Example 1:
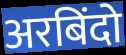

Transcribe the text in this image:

अरबिंदो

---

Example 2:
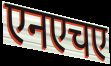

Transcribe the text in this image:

एनएचए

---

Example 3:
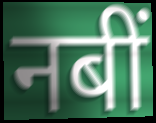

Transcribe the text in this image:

नबीं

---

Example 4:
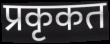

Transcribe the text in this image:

प्रकृकत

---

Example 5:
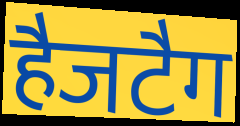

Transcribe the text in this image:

हैजटैग